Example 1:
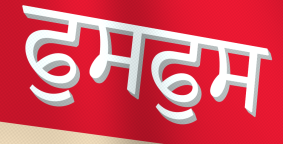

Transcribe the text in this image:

ਫੁਸਫੁਸ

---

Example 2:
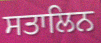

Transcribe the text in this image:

ਸਤਾਲਿਨ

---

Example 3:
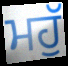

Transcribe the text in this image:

ਮਹੁੱ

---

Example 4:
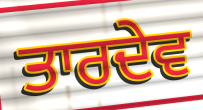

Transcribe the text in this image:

ਤਾਰਦੇਵ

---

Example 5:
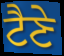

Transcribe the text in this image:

ਟੈਣੇ